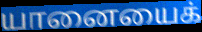
யானையைக்